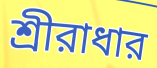
শ্রীরাধার